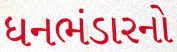
ધનભંડારનો